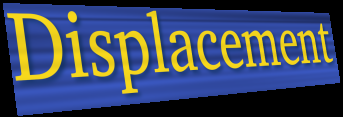
Displacement